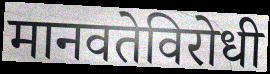
मानवतेविरोधी